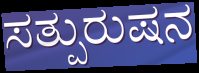
ಸತ್ಪುರುಷನ